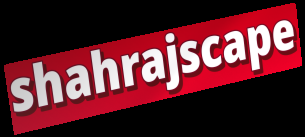
shahrajscape